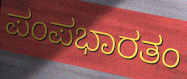
ಪಂಪಭಾರತಂ